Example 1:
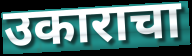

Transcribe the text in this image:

उकाराचा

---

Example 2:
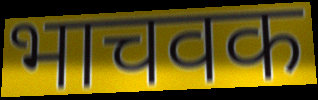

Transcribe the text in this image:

भाचवक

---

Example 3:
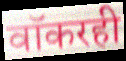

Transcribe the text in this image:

वॉकरही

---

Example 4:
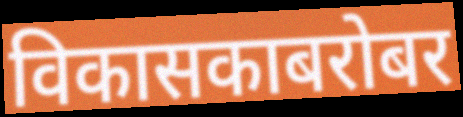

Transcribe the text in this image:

विकासकाबरोबर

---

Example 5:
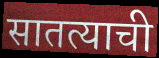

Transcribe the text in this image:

सातत्याची